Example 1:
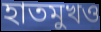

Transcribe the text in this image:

হাতমুখও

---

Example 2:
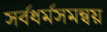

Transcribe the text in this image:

সর্বধর্মসমন্বয়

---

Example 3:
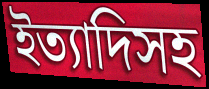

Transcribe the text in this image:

ইত্যাদিসহ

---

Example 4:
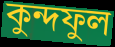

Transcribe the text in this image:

কুন্দফুল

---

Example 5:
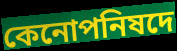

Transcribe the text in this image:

কেনোপনিষদে